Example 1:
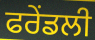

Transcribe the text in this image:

ਫਰੇਂਡਲੀ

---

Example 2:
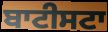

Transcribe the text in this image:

ਬਾਟੀਸਟਾ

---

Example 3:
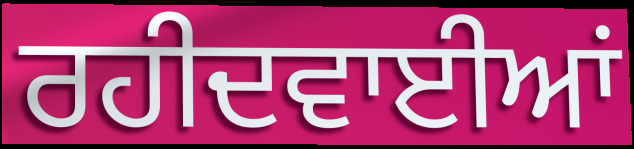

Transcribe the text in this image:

ਰਹੀਦਵਾਈਆਂ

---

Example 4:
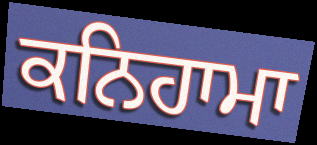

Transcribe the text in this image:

ਕਨਿਹਾਮਾ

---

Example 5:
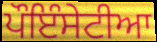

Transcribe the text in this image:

ਪੌਇੰਸੇਟੀਆ